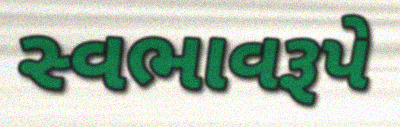
સ્વભાવરૂપે